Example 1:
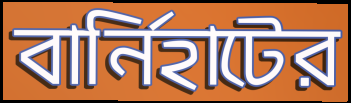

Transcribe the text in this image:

বার্নিহাটের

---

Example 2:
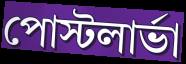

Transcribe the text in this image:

পোস্টলার্ভা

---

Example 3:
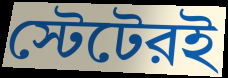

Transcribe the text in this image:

স্টেটেরই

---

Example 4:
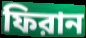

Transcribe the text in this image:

ফিরান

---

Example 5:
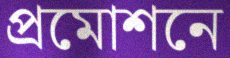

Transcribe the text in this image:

প্রমোশনে